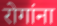
रोगांना